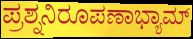
ಪ್ರಶ್ನನಿರೂಪಣಾಭ್ಯಾಮ್